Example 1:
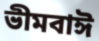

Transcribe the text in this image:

ভীমবাঈ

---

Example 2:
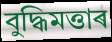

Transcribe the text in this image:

বুদ্ধিমত্তাৰ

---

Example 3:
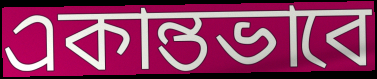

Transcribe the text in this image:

একান্তভাবে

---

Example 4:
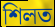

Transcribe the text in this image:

শিলত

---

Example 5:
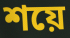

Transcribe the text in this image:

শয়ে